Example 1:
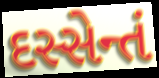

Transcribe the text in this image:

દસ્સેન્તં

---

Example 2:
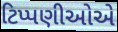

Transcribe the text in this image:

ટિપ્પણીઓએ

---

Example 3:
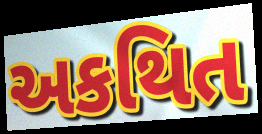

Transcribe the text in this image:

અકથિત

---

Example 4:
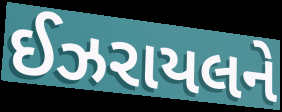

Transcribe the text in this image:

ઈઝરાયલને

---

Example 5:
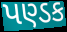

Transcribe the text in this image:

પણ્ડક